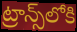
ట్రాన్స్‌లోకి